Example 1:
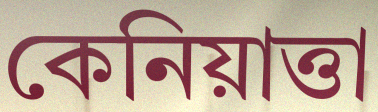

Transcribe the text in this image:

কেনিয়াত্তা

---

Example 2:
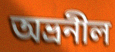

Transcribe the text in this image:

অভ্রনীল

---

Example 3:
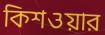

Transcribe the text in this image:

কিশওয়ার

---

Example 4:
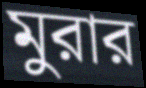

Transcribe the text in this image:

মুরার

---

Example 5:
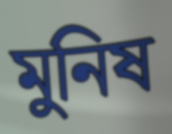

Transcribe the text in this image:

মুনিষ